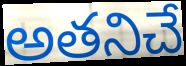
అతనిచే